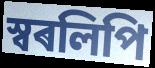
স্বৰলিপি